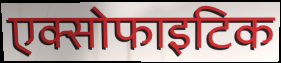
एक्सोफाइटिक